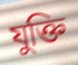
যুক্তি